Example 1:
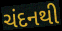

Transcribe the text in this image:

ચંદનથી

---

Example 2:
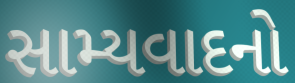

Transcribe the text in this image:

સામ્યવાદનો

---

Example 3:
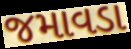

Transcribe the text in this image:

જમાવડા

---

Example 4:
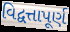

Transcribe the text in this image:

વિદ્વત્તાપૂર્ણ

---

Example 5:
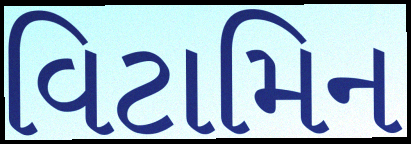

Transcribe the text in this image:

વિટામિન